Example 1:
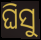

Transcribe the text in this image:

ଘିସୁ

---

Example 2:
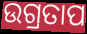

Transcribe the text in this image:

ଉଗ୍ରତାପ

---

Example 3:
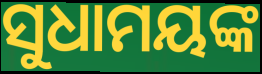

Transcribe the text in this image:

ସୁଧାମୟଙ୍କ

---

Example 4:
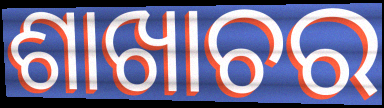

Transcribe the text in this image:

ଶାଖାଚର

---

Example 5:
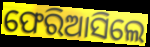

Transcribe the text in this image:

ଫେରିଆସିଲେ